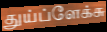
துய்ப்ளேக்சு